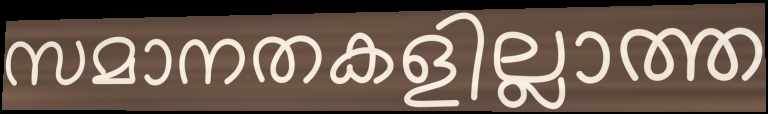
സമാനതകളില്ലാത്ത